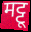
मट्टू